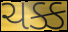
ચક્ક